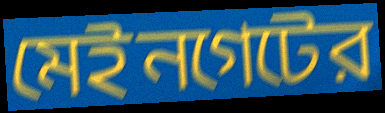
মেইনগেটের